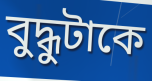
বুদ্ধুটাকে